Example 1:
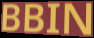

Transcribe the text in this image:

BBIN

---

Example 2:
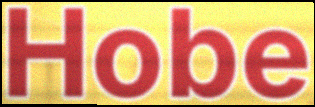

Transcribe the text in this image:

Hobe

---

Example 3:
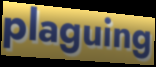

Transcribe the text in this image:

plaguing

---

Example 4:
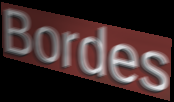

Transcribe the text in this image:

Bordes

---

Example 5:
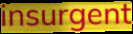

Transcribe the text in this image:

insurgent